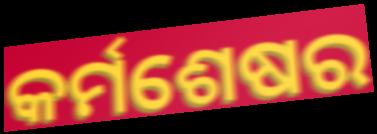
କର୍ମଶେଷର